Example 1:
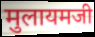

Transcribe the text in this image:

मुलायमजी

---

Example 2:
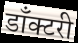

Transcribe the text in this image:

डाँक्टरी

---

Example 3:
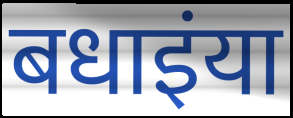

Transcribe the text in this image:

बधाइंया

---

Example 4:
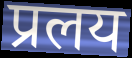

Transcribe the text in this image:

प्रलय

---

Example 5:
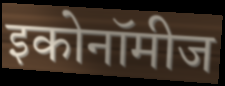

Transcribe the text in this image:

इकोनॉमीज